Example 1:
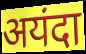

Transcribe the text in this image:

अयंदा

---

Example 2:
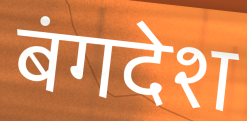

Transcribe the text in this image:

बंगदेश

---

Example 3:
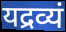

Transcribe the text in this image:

यद्रव्यं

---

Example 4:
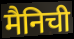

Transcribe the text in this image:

मैनिची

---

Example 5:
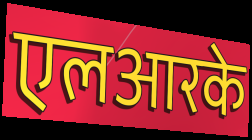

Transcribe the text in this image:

एलआरके